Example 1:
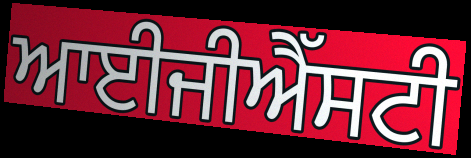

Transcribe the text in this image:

ਆਈਜੀਐੱਸਟੀ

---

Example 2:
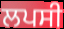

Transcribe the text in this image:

ਲਪਸੀ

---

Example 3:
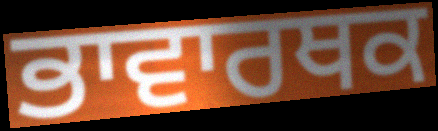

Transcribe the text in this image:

ਭਾਵਾਰਥਕ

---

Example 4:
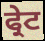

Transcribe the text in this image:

ਫ੍ਰੇਟ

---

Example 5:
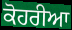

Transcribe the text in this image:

ਕੋਹਰੀਆ